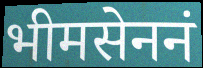
भीमसेननं